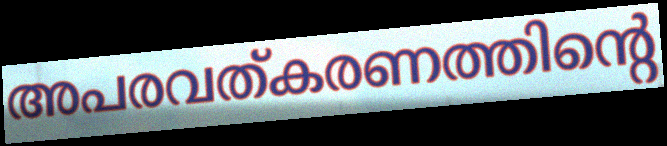
അപരവത്കരണത്തിന്റെ